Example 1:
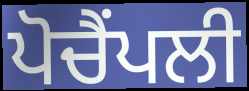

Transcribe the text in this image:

ਪੋਚੈਂਪਲੀ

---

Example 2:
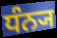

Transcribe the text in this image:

ਧੰਨ੍ਯ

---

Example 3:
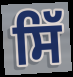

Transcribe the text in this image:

ਸਿੱ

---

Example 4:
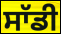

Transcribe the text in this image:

ਸਾੱਡੀ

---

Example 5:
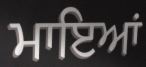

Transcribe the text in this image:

ਮਾਇਆਂ